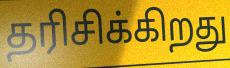
தரிசிக்கிறது